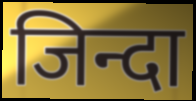
जिन्दा